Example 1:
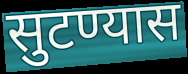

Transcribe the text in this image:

सुटण्यास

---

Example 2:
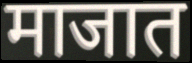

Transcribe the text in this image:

माजात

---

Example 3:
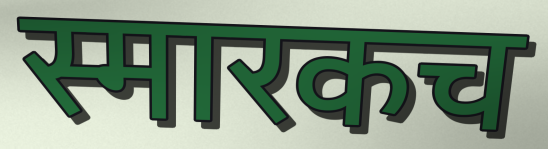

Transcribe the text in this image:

स्मारकच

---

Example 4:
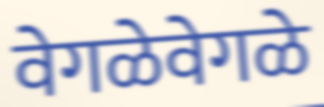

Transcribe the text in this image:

वेगळेवेगळे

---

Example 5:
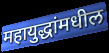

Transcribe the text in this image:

महायुद्धांमधील